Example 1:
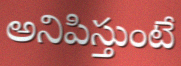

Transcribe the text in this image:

అనిపిస్తుంటే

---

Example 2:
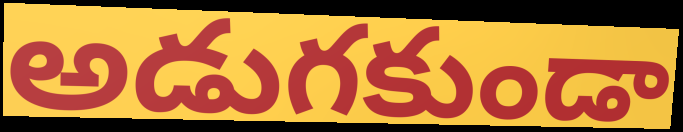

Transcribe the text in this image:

అడుగకుండా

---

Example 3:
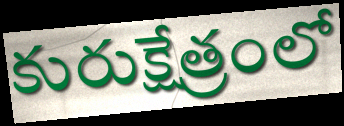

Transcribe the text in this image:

కురుక్షేత్రంలో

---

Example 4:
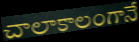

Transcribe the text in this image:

చాలాకాలంగానే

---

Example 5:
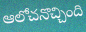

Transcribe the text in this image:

ఆలోచనొచ్చింది